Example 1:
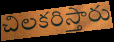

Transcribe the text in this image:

చిలకరిస్తారు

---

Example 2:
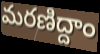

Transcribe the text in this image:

మరణిద్దాం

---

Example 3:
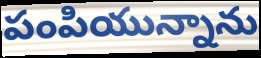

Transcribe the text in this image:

పంపియున్నాను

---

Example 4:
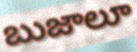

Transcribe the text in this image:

బుజాలూ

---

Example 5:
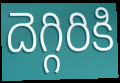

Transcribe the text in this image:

దెగ్గిరికి